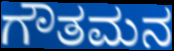
ಗೌತಮನ